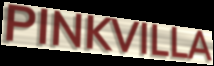
PINKVILLA